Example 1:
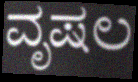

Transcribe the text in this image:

ವೃಷಲ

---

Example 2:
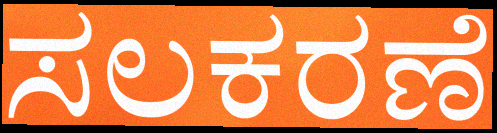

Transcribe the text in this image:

ಸಲಕರಣೆ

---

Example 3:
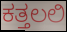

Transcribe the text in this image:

ಕತ್ತಲಲಿ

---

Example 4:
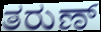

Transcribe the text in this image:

ತರುಣ್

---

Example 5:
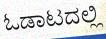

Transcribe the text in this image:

ಓಡಾಟದಲ್ಲಿ